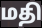
மதி